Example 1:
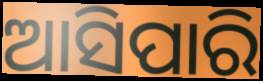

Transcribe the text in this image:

ଆସିପାରି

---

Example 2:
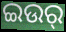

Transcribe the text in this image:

ଇଉର୍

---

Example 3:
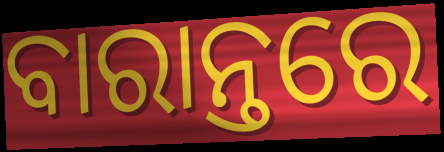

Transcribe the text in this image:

ବାରାନ୍ତରେ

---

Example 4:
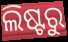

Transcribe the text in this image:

ଲିଷ୍ଟରୁ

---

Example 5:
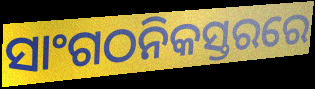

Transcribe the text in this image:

ସାଂଗଠନିକସ୍ତରରେ